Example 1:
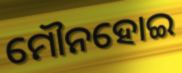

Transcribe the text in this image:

ମୌନହୋଇ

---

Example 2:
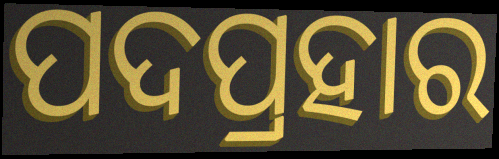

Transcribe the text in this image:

ପଦପ୍ରହାର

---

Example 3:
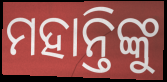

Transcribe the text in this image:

ମହାନ୍ତିଙ୍କୁ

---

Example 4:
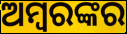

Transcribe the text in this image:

ଅମ୍ବରଙ୍କର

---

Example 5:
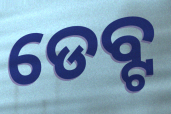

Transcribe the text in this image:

ଡେବ୍ଟ